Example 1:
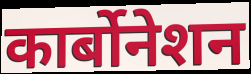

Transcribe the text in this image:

कार्बोनेशन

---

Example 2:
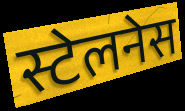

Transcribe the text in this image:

स्टेलनेस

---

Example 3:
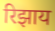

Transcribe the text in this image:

रिझाय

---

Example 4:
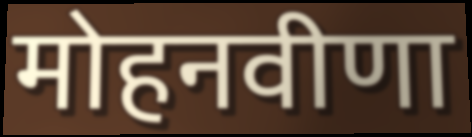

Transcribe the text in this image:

मोहनवीणा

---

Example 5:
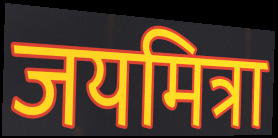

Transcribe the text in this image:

जयमित्रा